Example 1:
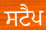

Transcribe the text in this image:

ਸਟੈਪ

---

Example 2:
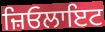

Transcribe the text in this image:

ਜ਼ਿਓਲਾਇਟ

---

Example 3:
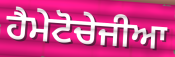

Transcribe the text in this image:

ਹੈਮੇਟੋਚੇਜੀਆ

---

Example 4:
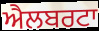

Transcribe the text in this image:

ਐਲਬਰਟਾ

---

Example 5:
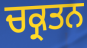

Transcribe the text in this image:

ਚਕ੍ਰਤਨ